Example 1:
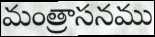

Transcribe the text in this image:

మంత్రాసనము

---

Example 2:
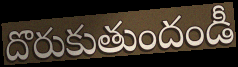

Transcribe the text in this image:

దొరుకుతుందండీ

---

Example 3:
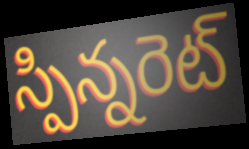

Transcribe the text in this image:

స్పిన్నరెట్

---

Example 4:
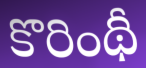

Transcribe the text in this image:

కొరింథీ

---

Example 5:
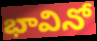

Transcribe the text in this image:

భావినో